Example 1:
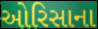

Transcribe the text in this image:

ઓરિસાના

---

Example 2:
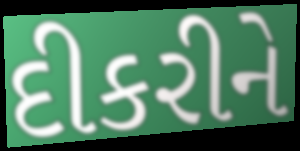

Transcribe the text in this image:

દીકરીને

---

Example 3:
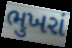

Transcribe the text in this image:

ભુખરાં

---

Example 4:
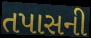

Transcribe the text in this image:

તપાસની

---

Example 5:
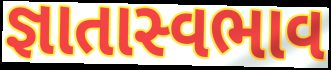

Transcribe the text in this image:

જ્ઞાતાસ્વભાવ